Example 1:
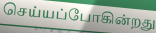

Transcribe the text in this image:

செய்யப்போகின்றது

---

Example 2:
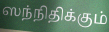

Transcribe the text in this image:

ஸந்நிதிக்கும்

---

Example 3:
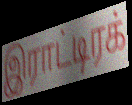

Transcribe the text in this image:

இராட்டிரக்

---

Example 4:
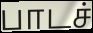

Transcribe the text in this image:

பாடச்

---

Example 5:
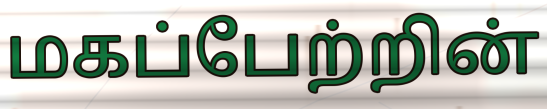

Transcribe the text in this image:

மகப்பேற்றின்